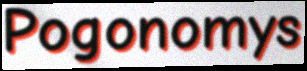
Pogonomys